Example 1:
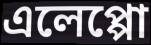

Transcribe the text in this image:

এলেপ্পো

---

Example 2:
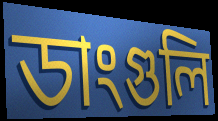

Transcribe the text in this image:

ডাংগুলি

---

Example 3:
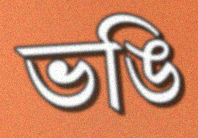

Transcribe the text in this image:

ভঙি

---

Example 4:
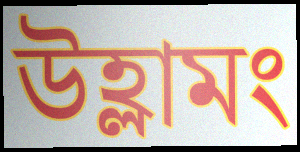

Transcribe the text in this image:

উহ্লামং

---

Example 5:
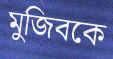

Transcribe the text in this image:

মুজিবকে